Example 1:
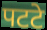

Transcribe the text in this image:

पटटे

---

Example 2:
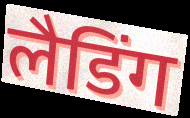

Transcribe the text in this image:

लैडिंग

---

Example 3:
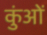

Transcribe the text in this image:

कुंओं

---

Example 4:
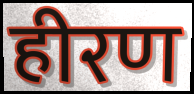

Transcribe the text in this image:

हीरण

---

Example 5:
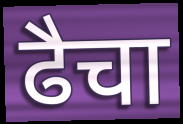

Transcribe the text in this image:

ढैचा